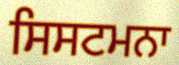
ਸਿਸਟਮਨਾ